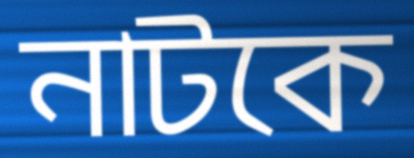
নাটকে